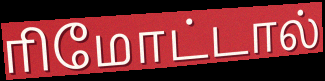
ரிமோட்டால்